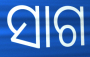
ସାଗ